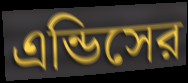
এন্ডিসের